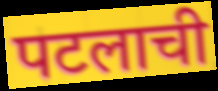
पटलाची